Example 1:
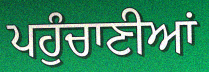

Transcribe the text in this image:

ਪਹੁੰਚਾਣੀਆਂ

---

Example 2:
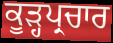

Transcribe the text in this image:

ਕੂੜ੍ਹਪ੍ਰਚਾਰ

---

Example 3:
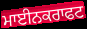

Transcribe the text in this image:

ਮਾਈਨਕਰਾਫਟ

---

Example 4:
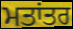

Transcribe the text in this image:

ਮਤਾਂਤਰ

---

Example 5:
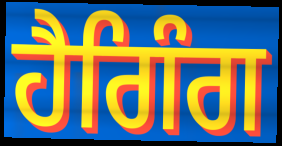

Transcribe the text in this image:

ਹੈਗਿੰਗ